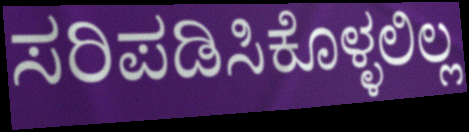
ಸರಿಪಡಿಸಿಕೊಳ್ಳಲಿಲ್ಲ